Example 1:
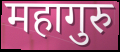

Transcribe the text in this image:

महागुरु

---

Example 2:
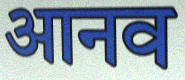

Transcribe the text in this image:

आनव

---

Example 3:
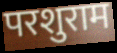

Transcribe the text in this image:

परशुराम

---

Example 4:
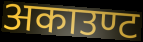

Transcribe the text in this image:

अकाउण्ट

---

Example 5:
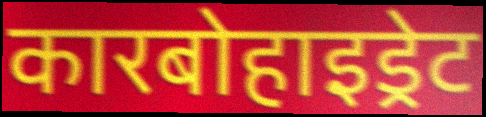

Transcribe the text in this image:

कारबोहाइड्रेट